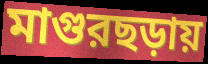
মাগুরছড়ায়